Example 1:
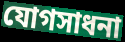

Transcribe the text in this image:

যোগসাধনা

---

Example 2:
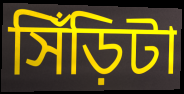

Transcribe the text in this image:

সিঁড়িটা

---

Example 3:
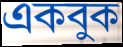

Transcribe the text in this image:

একবুক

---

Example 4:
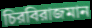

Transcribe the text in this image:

চিরবিরাজমান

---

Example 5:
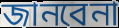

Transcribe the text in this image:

জানবেনা